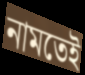
নামতেই